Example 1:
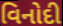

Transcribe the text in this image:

વિનોદી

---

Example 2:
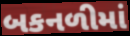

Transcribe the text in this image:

બકનળીમાં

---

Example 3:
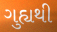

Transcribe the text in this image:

ગુહ્યથી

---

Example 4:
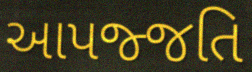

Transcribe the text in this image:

આપજ્જતિ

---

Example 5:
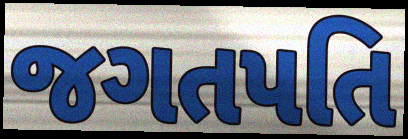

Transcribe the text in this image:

જગતપતિ